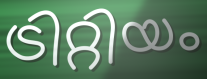
ട്രിറ്റിയം